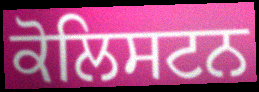
ਕੋਲਿਸਟਨ